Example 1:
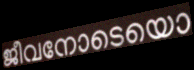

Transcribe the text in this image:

ജീവനോടെയൊ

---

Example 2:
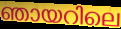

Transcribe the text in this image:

ഞായറിലെ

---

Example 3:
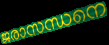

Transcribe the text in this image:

ജരാസന്ധനെ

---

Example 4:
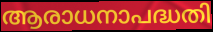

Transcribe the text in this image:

ആരാധനാപദ്ധതി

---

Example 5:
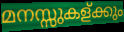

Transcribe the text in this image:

മനസ്സുകള്ക്കും